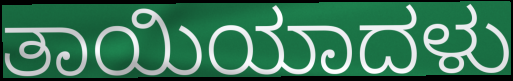
ತಾಯಿಯಾದಳು